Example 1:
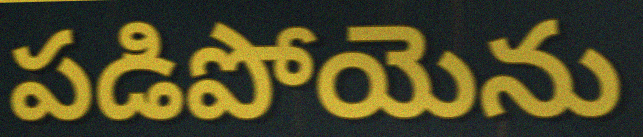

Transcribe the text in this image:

పడిపోయెను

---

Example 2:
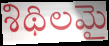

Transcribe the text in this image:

శిథిలమై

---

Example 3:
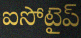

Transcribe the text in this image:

ఐసోటైప్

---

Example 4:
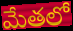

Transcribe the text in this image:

మేతలో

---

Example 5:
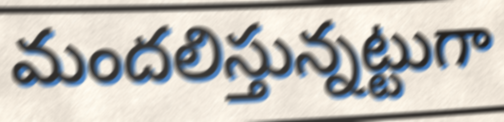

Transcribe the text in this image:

మందలిస్తున్నట్టుగా